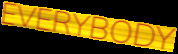
EVERYBODY